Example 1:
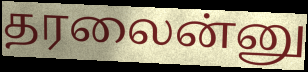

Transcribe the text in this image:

தரலைன்னு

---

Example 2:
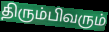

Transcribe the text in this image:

திரும்பிவரும்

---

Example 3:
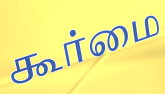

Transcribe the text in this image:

கூர்மை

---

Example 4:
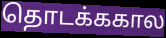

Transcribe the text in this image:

தொடக்ககால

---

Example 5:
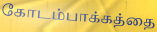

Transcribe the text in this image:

கோடம்பாக்கத்தை